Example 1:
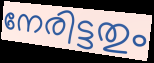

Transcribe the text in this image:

നേരിട്ടതും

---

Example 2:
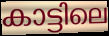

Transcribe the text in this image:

കാട്ടിലെ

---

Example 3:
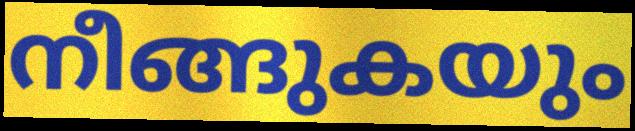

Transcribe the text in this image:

നീങ്ങുകയും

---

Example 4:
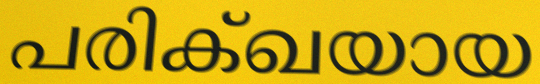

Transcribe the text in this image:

പരിക്ഖയായ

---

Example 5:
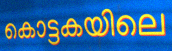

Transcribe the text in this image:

കൊട്ടകയിലെ